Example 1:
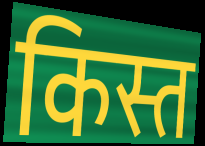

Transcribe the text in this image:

किस्त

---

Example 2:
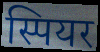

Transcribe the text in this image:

स्पियर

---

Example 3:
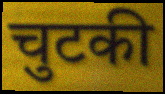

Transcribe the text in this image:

चुटकी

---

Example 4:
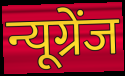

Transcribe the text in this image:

न्यूग्रेंज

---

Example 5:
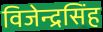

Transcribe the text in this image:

विजेन्द्रसिंह